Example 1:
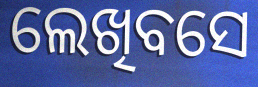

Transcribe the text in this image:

ଲେଖିବସେ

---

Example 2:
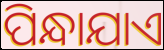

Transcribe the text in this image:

ପିନ୍ଧାଯାଏ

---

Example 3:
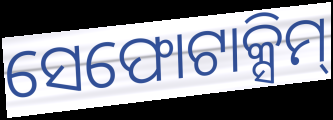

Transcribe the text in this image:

ସେଫୋଟାକ୍ସିମ୍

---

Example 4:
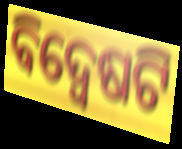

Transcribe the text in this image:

ବିଦ୍ୱେଷଟି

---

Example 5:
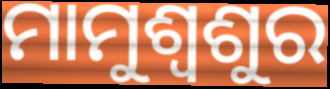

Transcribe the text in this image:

ମାମୁଶ୍ବଶୁର